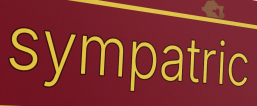
sympatric